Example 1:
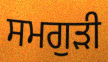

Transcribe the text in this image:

ਸਮਗੁੜੀ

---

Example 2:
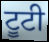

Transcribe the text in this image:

ਟੂਟੀ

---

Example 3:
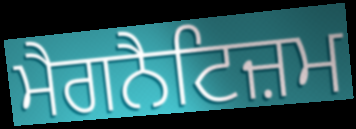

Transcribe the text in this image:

ਮੈਗਨੈਟਿਜ਼ਮ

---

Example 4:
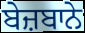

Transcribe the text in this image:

ਬੇਜ਼ਬਾਨੇ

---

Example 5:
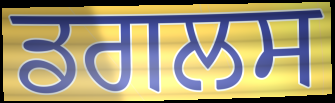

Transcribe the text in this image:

ਡਗਲਸ